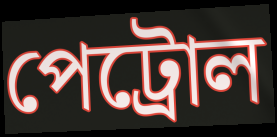
পেট্রোল